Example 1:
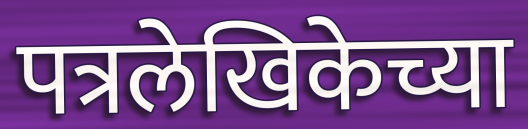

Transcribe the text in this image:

पत्रलेखिकेच्या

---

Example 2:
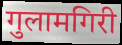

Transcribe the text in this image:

गुलामगिरी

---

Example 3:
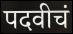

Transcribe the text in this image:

पदवीचं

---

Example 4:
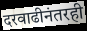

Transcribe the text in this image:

दरवाढीनंतरही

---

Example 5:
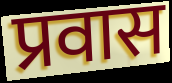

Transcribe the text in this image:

प्रवास